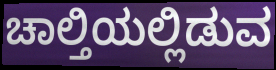
ಚಾಲ್ತಿಯಲ್ಲಿಡುವ